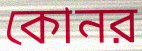
কোনর